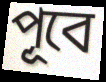
পূবে